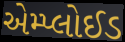
એમ્પ્લોઈડ